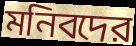
মনিবদের